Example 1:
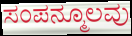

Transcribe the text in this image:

ಸಂಪನ್ಮೂಲವು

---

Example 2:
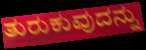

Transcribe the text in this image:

ತುರುಕುವುದನ್ನು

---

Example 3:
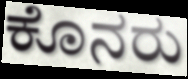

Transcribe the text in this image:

ಕೊನರು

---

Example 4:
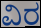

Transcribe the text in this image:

ವಿರ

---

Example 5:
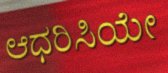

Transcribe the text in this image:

ಆಧರಿಸಿಯೇ